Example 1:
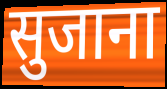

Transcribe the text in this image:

सुजाना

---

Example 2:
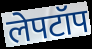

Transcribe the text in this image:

लेपटॉप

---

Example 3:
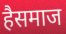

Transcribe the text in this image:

हैसमाज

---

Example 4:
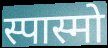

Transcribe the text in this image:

स्पास्मो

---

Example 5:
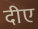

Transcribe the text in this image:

दीए